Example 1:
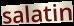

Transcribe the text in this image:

salatin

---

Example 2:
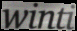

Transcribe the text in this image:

winti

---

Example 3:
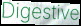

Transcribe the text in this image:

Digestive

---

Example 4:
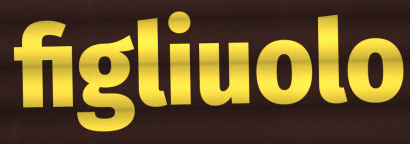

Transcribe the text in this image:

figliuolo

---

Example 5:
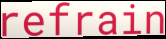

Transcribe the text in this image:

refrain